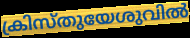
ക്രിസ്തുയേശുവിൽ